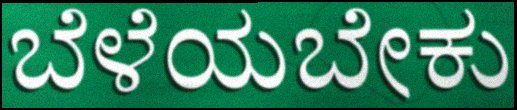
ಬೆಳೆಯಬೇಕು